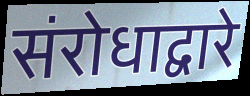
संरोधाद्वारे